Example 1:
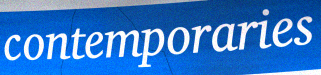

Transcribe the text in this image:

contemporaries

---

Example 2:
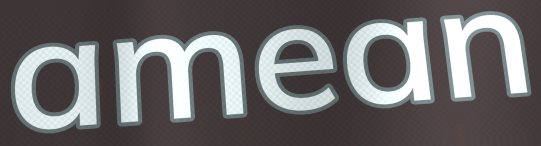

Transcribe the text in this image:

amean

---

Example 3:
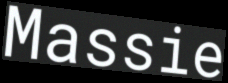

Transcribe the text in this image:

Massie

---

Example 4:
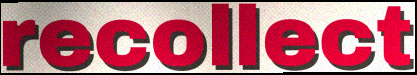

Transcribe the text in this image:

recollect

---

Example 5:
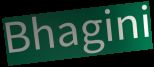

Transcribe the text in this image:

Bhagini